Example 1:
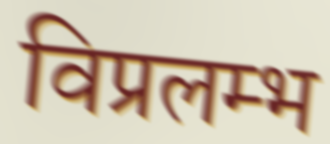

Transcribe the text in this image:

विप्रलम्भ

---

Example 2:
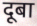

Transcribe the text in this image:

दूबा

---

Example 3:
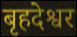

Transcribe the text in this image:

बृहदेश्वर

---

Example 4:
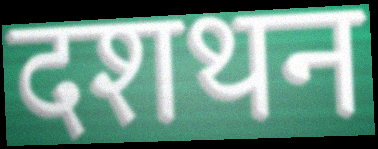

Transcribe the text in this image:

दशथन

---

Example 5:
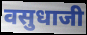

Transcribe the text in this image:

वसुधाजी